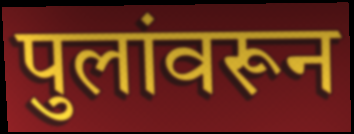
पुलांवरून